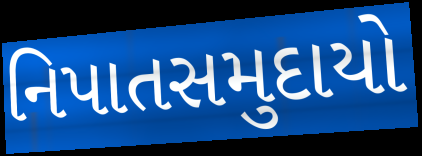
નિપાતસમુદાયો